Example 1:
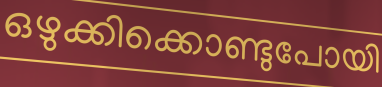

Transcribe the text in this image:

ഒഴുക്കിക്കൊണ്ടുപോയി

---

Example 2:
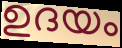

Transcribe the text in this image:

ഉദയം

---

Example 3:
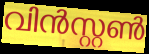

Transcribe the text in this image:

വിൻസ്റ്റൺ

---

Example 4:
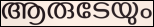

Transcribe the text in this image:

ആരുടേയും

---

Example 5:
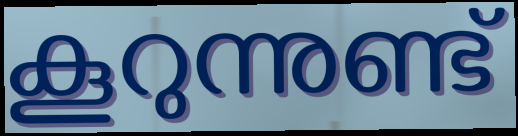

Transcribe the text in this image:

കൂറുന്നുണ്ട്